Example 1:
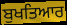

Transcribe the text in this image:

ਬੁਖਤਿਆਰ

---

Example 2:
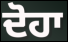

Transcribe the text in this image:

ਦੋਹਾ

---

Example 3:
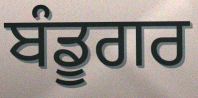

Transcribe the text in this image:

ਬੰਡੂਗਰ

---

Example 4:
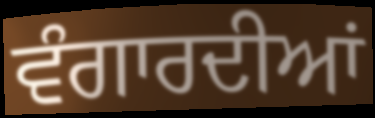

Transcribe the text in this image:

ਵੰਗਾਰਦੀਆਂ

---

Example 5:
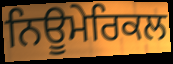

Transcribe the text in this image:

ਨਿਊਮੇਰਿਕਲ